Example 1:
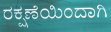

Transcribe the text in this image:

ರಕ್ಷಣೆಯಿಂದಾಗಿ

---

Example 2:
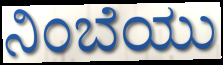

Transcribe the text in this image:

ನಿಂಬೆಯು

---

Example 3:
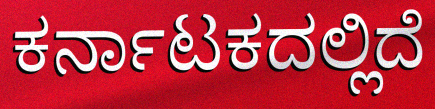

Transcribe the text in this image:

ಕರ್ನಾಟಕದಲ್ಲಿದೆ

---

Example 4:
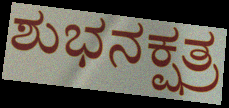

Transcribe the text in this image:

ಶುಭನಕ್ಷತ್ರ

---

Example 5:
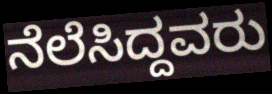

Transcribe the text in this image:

ನೆಲೆಸಿದ್ದವರು